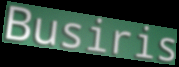
Busiris